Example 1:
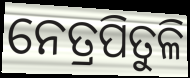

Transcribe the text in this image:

ନେତ୍ରପିତୁଳି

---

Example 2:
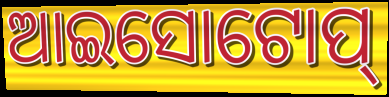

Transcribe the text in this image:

ଆଇସୋଟୋପ୍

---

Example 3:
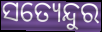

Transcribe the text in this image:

ସତ୍ୟେନ୍ଦୁର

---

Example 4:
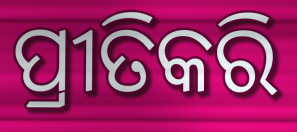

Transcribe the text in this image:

ପ୍ରୀତିକରି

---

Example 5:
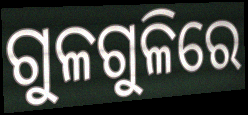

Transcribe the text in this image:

ଗୁଳଗୁଳିରେ